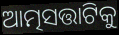
ଆତ୍ମସତ୍ତାଟିକୁ